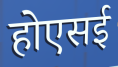
होएसई